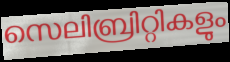
സെലിബ്രിറ്റികളും